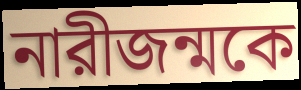
নারীজন্মকে